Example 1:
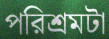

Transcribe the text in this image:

পরিশ্রমটা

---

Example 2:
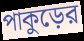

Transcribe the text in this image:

পাকুড়ের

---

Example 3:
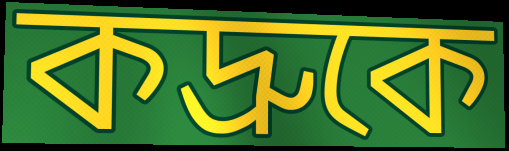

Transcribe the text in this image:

কদ্রুকে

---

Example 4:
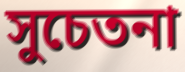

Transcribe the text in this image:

সুচেতনা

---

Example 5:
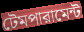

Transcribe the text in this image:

টেমপারামেন্ট